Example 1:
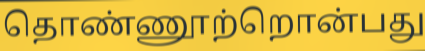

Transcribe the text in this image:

தொண்ணூற்றொன்பது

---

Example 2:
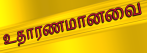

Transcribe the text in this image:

உதாரணமானவை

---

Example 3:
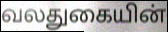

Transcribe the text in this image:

வலதுகையின்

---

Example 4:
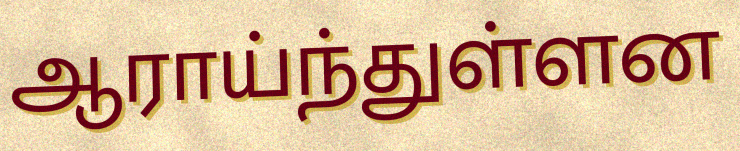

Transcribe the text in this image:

ஆராய்ந்துள்ளன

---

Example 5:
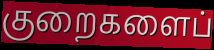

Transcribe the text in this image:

குறைகளைப்